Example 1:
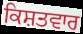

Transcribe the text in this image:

ਕਿਸ਼ਤਵਾਰ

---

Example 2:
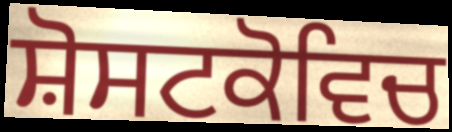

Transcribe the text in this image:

ਸ਼ੋਸਟਕੋਵਿਚ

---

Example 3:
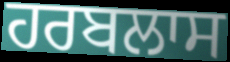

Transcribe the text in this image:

ਹਰਬਲਾਸ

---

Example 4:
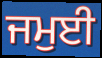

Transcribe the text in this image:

ਜਮੁਈ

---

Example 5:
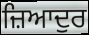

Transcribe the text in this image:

ਜ਼ਿਆਦੁਰ